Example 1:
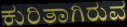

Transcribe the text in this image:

ಕುರಿತಾಗಿರುವ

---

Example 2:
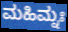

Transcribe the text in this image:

ಮಹಿಮ್ನಃ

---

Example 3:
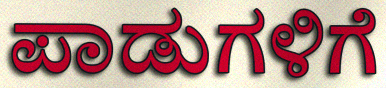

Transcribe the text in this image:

ಪಾಡುಗಳಿಗೆ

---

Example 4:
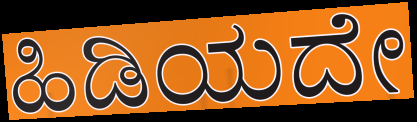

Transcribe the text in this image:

ಹಿಡಿಯದೇ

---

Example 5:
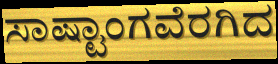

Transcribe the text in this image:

ಸಾಷ್ಟಾಂಗವೆರಗಿದ